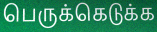
பெருக்கெடுக்க